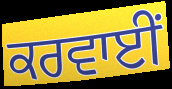
ਕਰਵਾਈਂ